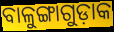
ବାଳୁଙ୍ଗାଗୁଡ଼ାକ